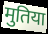
मुतिया